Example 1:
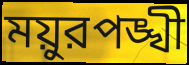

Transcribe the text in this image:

ময়ুরপঙ্খী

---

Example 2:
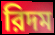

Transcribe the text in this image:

রিদম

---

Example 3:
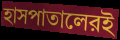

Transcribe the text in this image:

হাসপাতালেরই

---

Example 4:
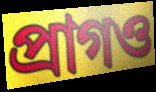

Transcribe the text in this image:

প্রাগও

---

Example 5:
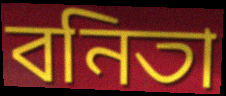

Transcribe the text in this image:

বনিতা